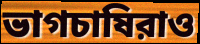
ভাগচাষিরাও